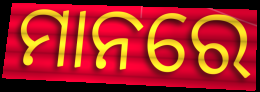
ମାନରେ